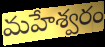
మహేశ్వరం